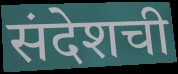
संदेशची